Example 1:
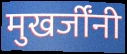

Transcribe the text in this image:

मुखर्जींनी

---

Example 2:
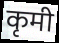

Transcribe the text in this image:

कृमी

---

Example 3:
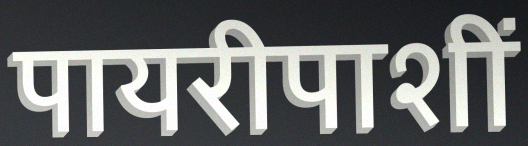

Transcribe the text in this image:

पायरीपाशीं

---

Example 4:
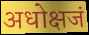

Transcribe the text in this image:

अधोक्षजं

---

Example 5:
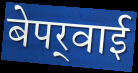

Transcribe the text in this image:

बेपर्वाई